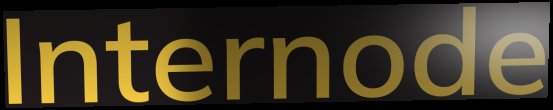
Internode